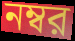
নম্বর